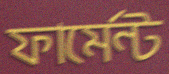
ফার্মেন্ট